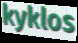
kyklos